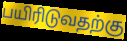
பயிரிடுவதற்கு